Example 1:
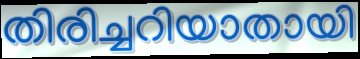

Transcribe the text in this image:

തിരിച്ചറിയാതായി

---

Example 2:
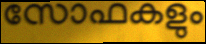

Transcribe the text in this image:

സോഫകളും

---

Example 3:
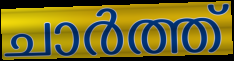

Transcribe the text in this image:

ചാർത്ത്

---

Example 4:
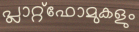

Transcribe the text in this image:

പ്ലാറ്റ്ഫോമുകളും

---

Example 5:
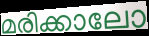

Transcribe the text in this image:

മരിക്കാലോ